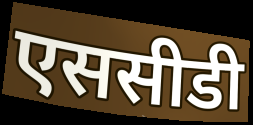
एससीडी